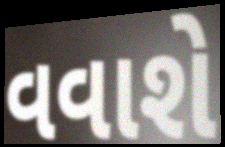
વવાશે